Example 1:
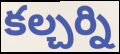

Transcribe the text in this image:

కల్చర్ని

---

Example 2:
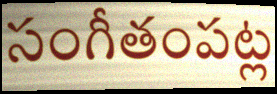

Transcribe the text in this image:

సంగీతంపట్ల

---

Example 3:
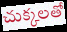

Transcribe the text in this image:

చుక్కలతో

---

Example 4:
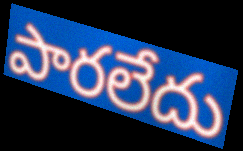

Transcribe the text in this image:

పారలేదు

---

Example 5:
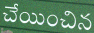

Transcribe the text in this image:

చేయించిన